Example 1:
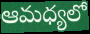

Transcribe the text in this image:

ఆమధ్యలో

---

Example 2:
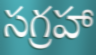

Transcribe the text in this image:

సగ్రహా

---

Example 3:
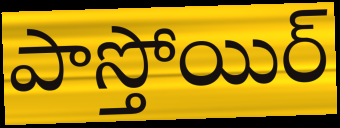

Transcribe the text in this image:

పాస్తోయిర్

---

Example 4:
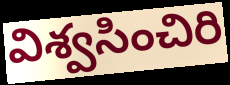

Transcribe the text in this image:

విశ్వసించిరి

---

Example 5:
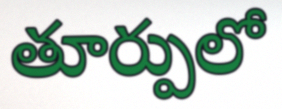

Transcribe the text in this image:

తూర్పులో